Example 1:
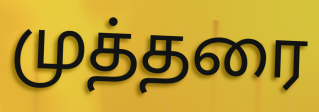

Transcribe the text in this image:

முத்தரை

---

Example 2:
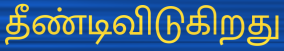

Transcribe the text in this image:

தீண்டிவிடுகிறது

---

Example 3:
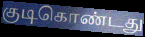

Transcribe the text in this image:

குடிகொண்டது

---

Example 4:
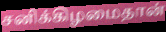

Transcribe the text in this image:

சனிக்கிழமைதான்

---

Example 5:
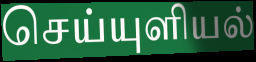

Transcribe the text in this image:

செய்யுளியல்